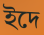
ইদে